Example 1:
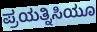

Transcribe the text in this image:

ಪ್ರಯತ್ನಿಸಿಯೂ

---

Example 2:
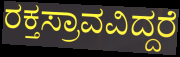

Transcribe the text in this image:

ರಕ್ತಸ್ರಾವವಿದ್ದರೆ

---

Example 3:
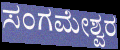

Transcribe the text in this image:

ಸಂಗಮೇಶ್ವರ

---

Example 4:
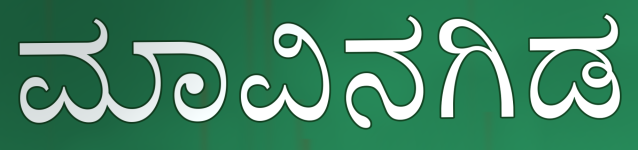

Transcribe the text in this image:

ಮಾವಿನಗಿಡ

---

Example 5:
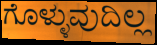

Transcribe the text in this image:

ಗೊಳ್ಳುವುದಿಲ್ಲ